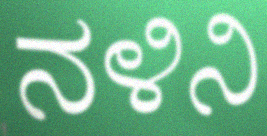
ನಳಿನಿ